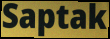
Saptak